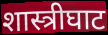
शास्त्रीघाट